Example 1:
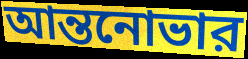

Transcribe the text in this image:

আন্তনোভার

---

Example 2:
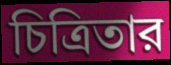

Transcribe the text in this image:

চিত্রিতার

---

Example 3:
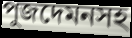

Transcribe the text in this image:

পুজদেমনসহ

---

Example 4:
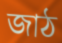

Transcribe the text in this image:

জাঠ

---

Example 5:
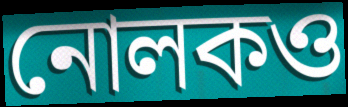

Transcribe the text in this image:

নোলকও